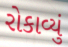
રોકાવ્યું